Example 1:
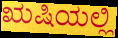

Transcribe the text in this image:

ಋಷಿಯಲ್ಲಿ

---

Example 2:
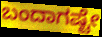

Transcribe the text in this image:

ಬಂದಾಗಷ್ಟೇ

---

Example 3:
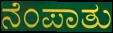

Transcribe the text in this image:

ನೆಂಪಾತು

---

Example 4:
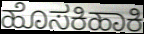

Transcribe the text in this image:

ಹೊಸಕಿಹಾಕಿ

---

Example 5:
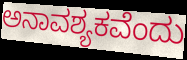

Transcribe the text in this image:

ಅನಾವಶ್ಯಕವೆಂದು